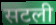
सटली